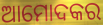
ଆମୋଦକର